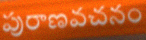
పురాణవచనం